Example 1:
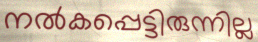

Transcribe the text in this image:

നൽകപ്പെട്ടിരുന്നില്ല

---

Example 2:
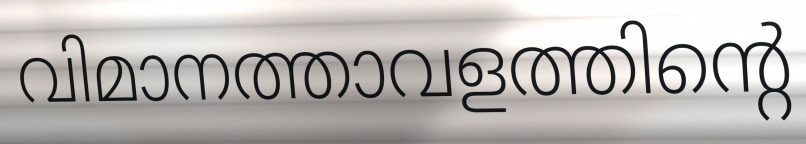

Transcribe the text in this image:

വിമാനത്താവളത്തിന്റെ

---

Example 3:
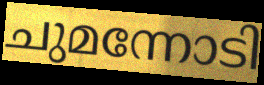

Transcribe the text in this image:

ചുമന്നോടി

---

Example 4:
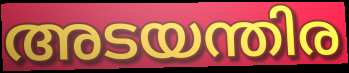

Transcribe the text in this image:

അടയന്തിര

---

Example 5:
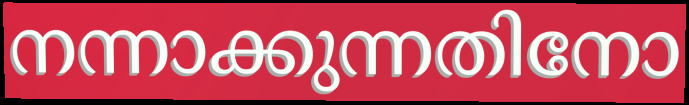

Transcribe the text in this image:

നന്നാക്കുന്നതിനോ